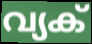
വ്യക്